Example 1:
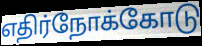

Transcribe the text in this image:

எதிர்நோக்கோடு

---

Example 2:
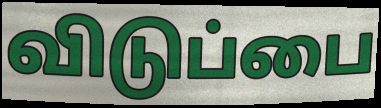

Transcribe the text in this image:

விடுப்பை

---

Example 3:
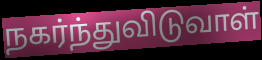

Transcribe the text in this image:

நகர்ந்துவிடுவாள்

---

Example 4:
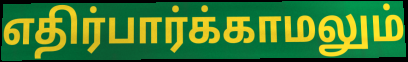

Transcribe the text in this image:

எதிர்பார்க்காமலும்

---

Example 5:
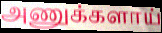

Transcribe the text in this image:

அணுக்களாய்